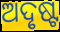
ଅଦୃଷ୍ଟ